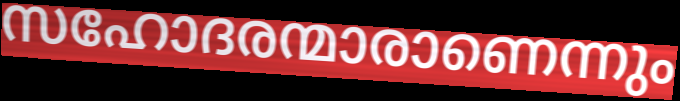
സഹോദരന്മാരാണെന്നും